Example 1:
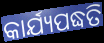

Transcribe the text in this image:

କାର୍ଯ୍ୟପଦ୍ଧତି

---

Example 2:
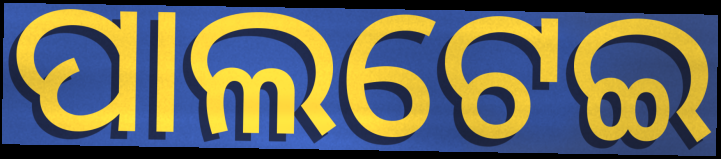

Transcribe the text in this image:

ପାଲଟେଇ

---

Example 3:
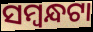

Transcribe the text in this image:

ସମ୍ବନ୍ଧଟା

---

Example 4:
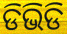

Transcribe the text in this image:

ଡିଭିଡି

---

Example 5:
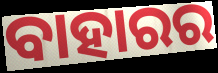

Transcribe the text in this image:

ବାହାରର